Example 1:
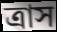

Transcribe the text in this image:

ত্রাস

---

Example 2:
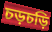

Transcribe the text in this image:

চড়চড়ি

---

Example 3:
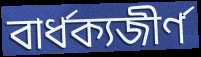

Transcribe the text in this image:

বার্ধক্যজীর্ণ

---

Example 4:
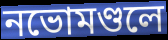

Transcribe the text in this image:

নভোমণ্ডলে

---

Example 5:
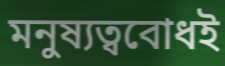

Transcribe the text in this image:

মনুষ্যত্ববোধই